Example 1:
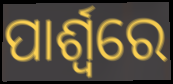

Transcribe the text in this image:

ପାର୍ଶ୍ୱରେ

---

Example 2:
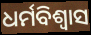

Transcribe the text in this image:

ଧର୍ମବିଶ୍ଵାସ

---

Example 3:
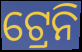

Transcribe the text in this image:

ଟ୍ରେନି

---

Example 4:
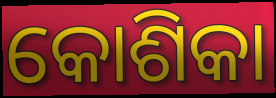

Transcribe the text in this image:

କୋଶିକା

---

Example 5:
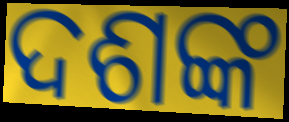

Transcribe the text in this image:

ଦଶଙ୍କ